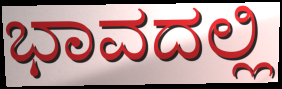
ಭಾವದಲ್ಲಿ